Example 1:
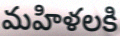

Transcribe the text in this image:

మహిళలకి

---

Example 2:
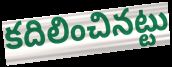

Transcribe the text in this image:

కదిలించినట్టు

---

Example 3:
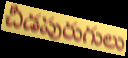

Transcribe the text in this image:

చీడపురుగులు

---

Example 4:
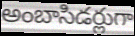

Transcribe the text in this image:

అంబాసిడర్లుగా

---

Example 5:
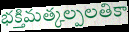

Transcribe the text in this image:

భక్తిమత్కల్పలతికా